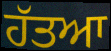
ਹੱਤਆ